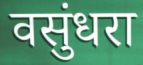
वसुंधरा